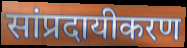
सांप्रदायीकरण